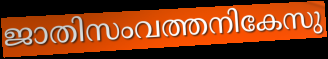
ജാതിസംവത്തനികേസു